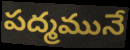
పద్మమునే